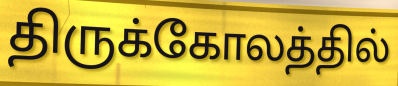
திருக்கோலத்தில்